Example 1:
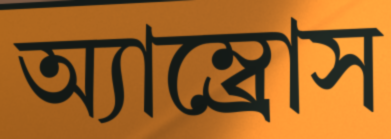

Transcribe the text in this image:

অ্যাম্ব্রোস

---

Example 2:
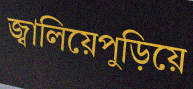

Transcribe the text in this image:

জ্বালিয়েপুড়িয়ে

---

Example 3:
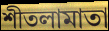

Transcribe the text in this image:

শীতলামাতা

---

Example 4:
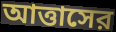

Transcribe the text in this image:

আত্তাসের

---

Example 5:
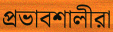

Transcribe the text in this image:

প্রভাবশালীরা